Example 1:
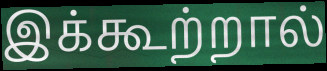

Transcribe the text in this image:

இக்கூற்றால்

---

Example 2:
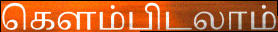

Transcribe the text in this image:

கெளம்பிடலாம்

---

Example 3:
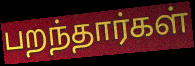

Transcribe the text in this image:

பறந்தார்கள்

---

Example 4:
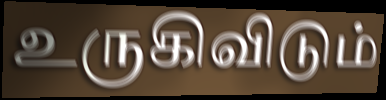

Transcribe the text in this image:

உருகிவிடும்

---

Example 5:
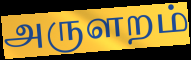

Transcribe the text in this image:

அருளறம்